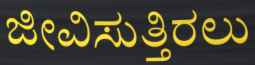
ಜೀವಿಸುತ್ತಿರಲು